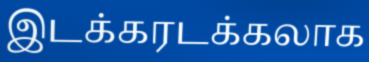
இடக்கரடக்கலாக